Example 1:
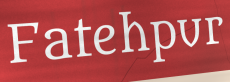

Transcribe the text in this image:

Fatehpur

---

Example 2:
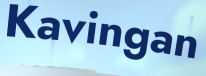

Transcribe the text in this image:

Kavingan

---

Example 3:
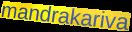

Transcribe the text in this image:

mandrakariva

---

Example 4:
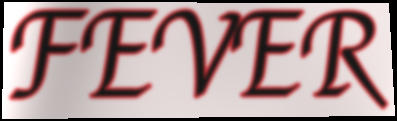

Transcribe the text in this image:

FEVER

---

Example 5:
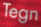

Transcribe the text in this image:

Tegn